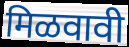
मिळवावी